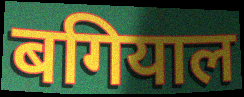
बगियाल